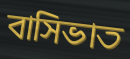
বাসিভাত